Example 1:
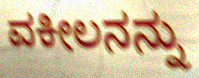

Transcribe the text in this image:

ವಕೀಲನನ್ನು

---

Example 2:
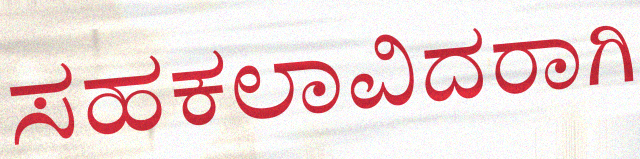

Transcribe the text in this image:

ಸಹಕಲಾವಿದರಾಗಿ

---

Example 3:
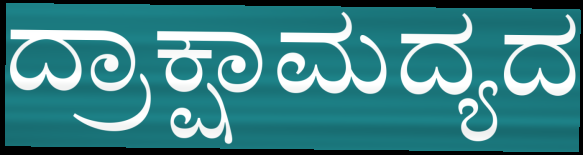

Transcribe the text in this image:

ದ್ರಾಕ್ಷಾಮದ್ಯದ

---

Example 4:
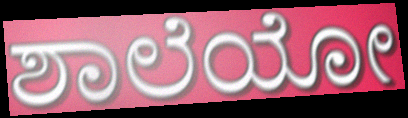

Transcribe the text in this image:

ಶಾಲೆಯೋ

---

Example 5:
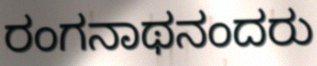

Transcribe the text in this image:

ರಂಗನಾಥನಂದರು